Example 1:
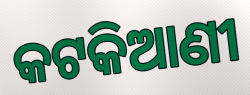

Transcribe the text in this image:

କଟକିଆଣୀ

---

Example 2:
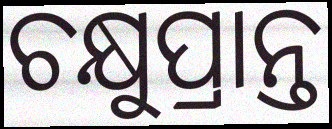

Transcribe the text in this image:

ଚକ୍ଷୁପ୍ରାନ୍ତ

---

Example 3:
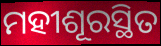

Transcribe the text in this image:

ମହୀଶୂରସ୍ଥିତ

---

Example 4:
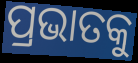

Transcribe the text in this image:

ପ୍ରଭାତକୁ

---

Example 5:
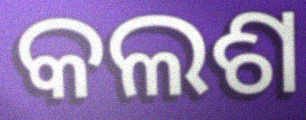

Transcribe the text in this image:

କଲଶ